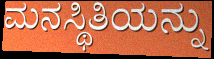
ಮನಸ್ಥಿತಿಯನ್ನು